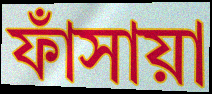
ফাঁসায়া